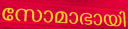
സോമാഭായി